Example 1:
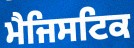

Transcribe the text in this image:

ਮੈਜਿਸਟਿਕ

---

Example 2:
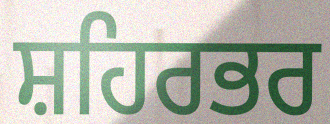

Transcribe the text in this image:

ਸ਼ਹਿਰਭਰ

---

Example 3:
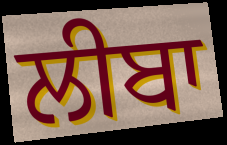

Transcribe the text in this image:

ਲੀਬਾ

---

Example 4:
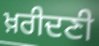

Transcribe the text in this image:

ਖ਼ਰੀਦਣੀ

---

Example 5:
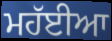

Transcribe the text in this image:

ਮਹੱਈਆ